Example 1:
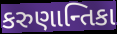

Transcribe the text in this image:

કરુણાન્તિકા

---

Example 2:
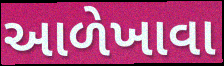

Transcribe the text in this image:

આળેખાવા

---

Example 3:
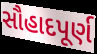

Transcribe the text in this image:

સૌહાદપૂર્ણ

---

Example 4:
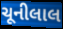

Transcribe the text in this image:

ચૂનીલાલ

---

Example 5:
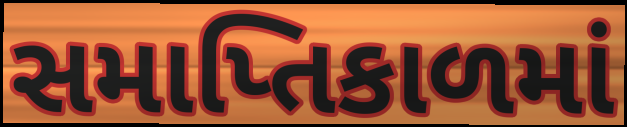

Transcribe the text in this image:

સમાપ્તિકાળમાં